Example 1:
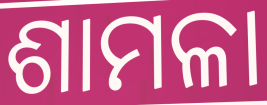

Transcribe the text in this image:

ଶାମଳା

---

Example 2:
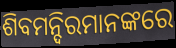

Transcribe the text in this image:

ଶିବମନ୍ଦିରମାନଙ୍କରେ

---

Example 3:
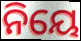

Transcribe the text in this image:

ନିୟେ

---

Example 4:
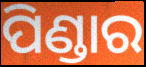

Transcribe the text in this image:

ପିଣ୍ଡାର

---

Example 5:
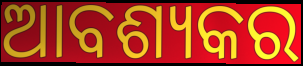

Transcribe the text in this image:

ଆବଶ୍ୟକର